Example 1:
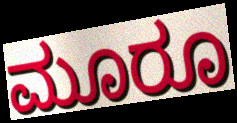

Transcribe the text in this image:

ಮೂರೂ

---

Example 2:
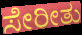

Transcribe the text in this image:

ಸೇರೀತು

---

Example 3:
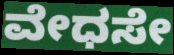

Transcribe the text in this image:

ವೇಧಸೇ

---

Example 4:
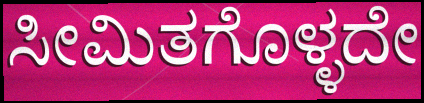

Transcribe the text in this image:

ಸೀಮಿತಗೊಳ್ಳದೇ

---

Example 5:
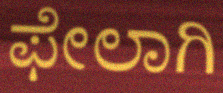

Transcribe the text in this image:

ಫೇಲಾಗಿ